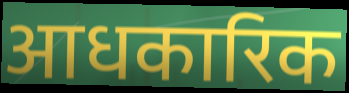
आधकारिक